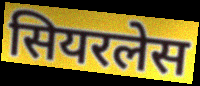
सियरलेस